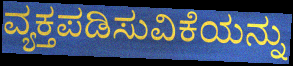
ವ್ಯಕ್ತಪಡಿಸುವಿಕೆಯನ್ನು